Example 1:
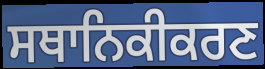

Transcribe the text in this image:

ਸਥਾਨਿਕੀਕਰਣ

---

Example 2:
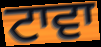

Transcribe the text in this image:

ਟਾਵਾ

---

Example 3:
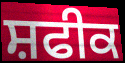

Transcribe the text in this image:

ਸ਼ਫੀਕ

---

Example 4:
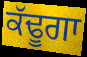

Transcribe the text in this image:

ਕੱਢੂਗਾ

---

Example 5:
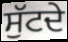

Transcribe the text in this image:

ਸੁੱਟਦੇ